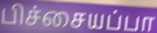
பிச்சையப்பா